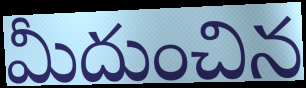
మీదుంచిన